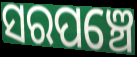
ସରପଞ୍ଚେ